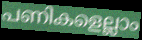
പണികളെല്ലാം